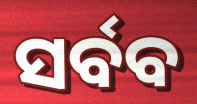
ସର୍ବବ